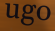
ugo